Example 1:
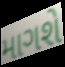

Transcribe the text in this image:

માગશે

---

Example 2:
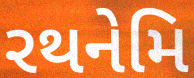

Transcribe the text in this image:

રથનેમિ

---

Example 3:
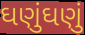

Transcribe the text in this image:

ઘણુંઘણું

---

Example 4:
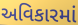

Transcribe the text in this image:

અવિકારમાં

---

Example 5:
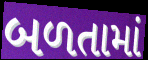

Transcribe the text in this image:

બળતામાં